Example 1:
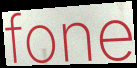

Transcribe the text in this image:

fone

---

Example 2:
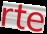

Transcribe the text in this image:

rte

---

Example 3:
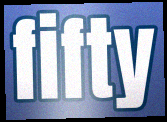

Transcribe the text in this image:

fifty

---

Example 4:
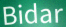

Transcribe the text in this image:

Bidar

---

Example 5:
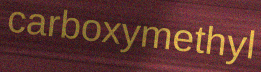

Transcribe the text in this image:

carboxymethyl